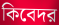
কিবেদর